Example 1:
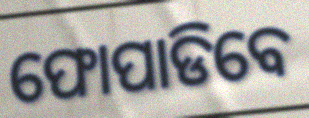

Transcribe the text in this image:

ଫୋପାଡିବେ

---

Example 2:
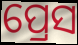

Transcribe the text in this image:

ପ୍ରେସ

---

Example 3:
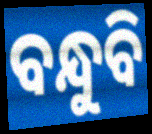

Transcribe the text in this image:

ବନ୍ଧୁବି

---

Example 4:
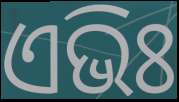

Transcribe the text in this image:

ଏଭିଃ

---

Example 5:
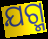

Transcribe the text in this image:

ଯଗ୍ମ